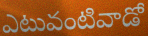
ఎటువంటివాడో